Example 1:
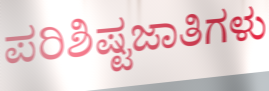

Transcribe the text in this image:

ಪರಿಶಿಷ್ಟಜಾತಿಗಳು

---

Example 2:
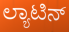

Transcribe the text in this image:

ಲ್ಯಾಟಿನ್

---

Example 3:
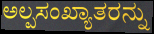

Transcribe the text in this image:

ಅಲ್ಪಸಂಖ್ಯಾತರನ್ನು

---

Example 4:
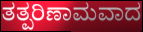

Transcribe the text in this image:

ತತ್ಪರಿಣಾಮವಾದ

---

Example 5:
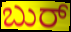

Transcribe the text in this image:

ಬುರ್